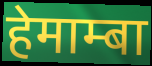
हेमाम्बा